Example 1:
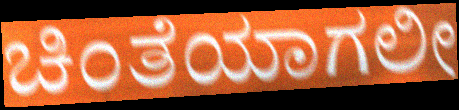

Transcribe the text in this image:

ಚಿಂತೆಯಾಗಲೀ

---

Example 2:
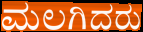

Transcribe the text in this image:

ಮಲಗಿದರು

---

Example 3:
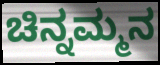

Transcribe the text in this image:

ಚಿನ್ನಮ್ಮನ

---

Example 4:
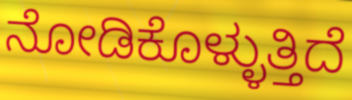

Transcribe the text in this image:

ನೋಡಿಕೊಳ್ಳುತ್ತಿದೆ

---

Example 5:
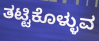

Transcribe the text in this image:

ತಟ್ಟಿಕೊಳ್ಳುವ